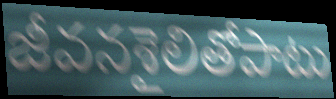
జీవనశైలితోపాటు